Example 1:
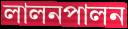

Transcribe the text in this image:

লালনপালন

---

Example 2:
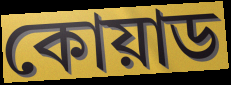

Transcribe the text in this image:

কোয়াড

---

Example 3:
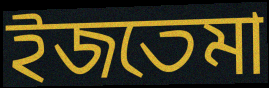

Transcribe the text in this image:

ইজতেমা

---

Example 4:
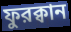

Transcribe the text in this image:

ফুরক্বান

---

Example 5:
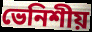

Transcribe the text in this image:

ভেনিশীয়